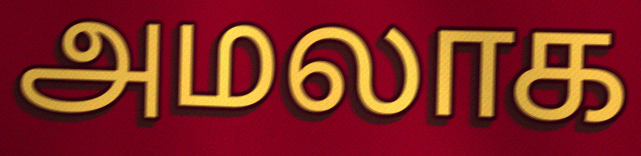
அமலாக